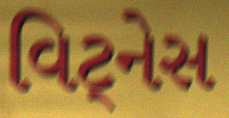
વિટ્નેસ